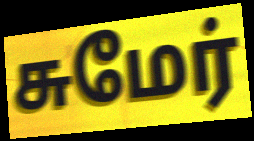
சுமேர்